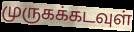
முருகக்கடவுள்